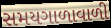
સમયગાળાવાળી